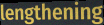
lengthening